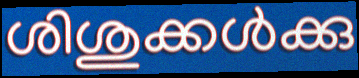
ശിശുക്കൾക്കു